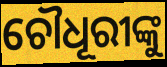
ଚୌଧୂରୀଙ୍କୁ